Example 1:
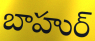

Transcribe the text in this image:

బాహుర్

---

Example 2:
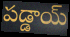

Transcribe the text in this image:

పడ్డాయ్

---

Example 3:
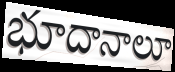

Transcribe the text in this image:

భూదానాలూ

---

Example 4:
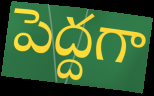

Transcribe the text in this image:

పెద్దగా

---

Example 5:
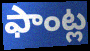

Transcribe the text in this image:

ఫాంట్ల